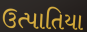
ઉત્પાતિયા